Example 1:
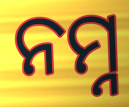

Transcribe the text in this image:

ନମ୍ନ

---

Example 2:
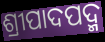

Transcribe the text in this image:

ଶ୍ରୀପାଦପଦ୍ମ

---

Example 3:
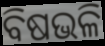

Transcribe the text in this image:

ବିଷଭଳି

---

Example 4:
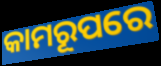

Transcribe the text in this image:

କାମରୂପରେ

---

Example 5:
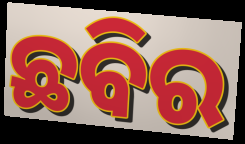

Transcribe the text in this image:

ଛବିର